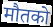
मौतको